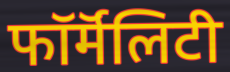
फॉर्मॅलिटी